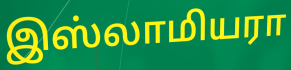
இஸ்லாமியரா